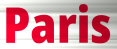
Paris